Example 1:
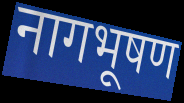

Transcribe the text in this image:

नागभूषण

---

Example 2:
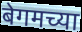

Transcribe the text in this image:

बेगमच्या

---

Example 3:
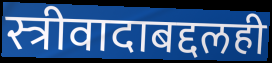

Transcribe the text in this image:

स्त्रीवादाबद्दलही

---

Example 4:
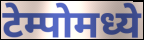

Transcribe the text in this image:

टेम्पोमध्ये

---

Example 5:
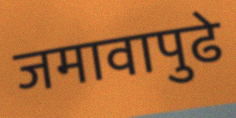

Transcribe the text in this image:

जमावापुढे